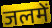
जलमें